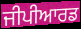
ਜੀਪੀਆਰਡ